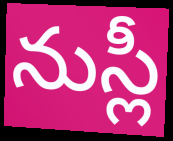
నుస్లీ